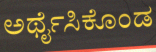
ಅರ್ಥೈಸಿಕೊಂಡ